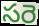
సరె